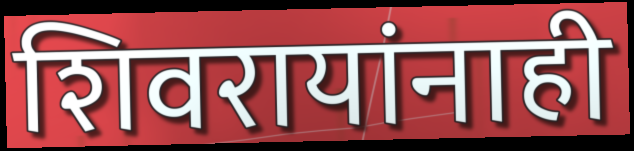
शिवरायांनाही